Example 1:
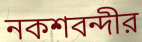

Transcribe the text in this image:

নকশবন্দীর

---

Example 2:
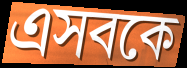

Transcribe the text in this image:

এসবকে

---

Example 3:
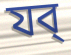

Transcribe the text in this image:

যব্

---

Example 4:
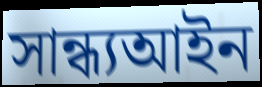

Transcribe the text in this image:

সান্ধ্যআইন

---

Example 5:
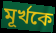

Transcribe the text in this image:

মূর্খকে